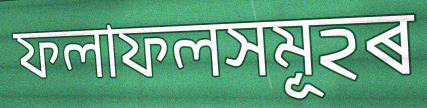
ফলাফলসমূহৰ